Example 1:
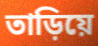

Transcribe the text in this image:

তাড়িয়ে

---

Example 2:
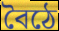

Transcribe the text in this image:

বৈঠে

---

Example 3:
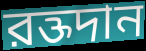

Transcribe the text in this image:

রক্তদান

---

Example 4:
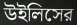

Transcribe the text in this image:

উইলিসের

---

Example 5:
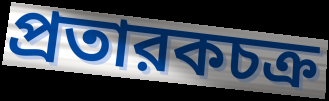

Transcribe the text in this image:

প্রতারকচক্র